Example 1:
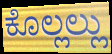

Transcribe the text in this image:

ಕೊಲ್ಲಲ್ಲು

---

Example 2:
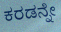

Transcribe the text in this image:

ಕರಡನ್ನೇ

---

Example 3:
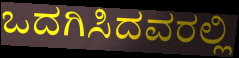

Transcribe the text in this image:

ಒದಗಿಸಿದವರಲ್ಲಿ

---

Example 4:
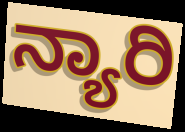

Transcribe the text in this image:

ನ್ಯಾರಿ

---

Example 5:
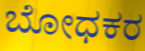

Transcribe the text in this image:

ಬೋಧಕರ